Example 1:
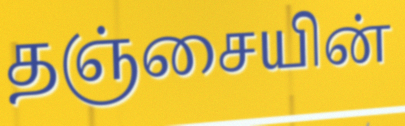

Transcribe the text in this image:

தஞ்சையின்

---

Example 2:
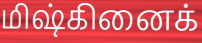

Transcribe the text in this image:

மிஷ்கினைக்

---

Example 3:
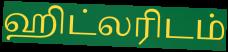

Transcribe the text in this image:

ஹிட்லரிடம்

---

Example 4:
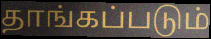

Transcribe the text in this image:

தாங்கப்படும்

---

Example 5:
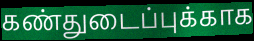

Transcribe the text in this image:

கண்துடைப்புக்காக